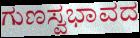
ಗುಣಸ್ವಭಾವದ